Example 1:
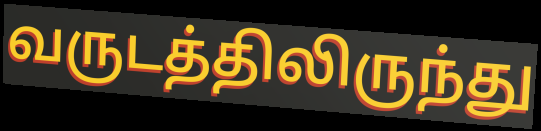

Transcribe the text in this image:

வருடத்திலிருந்து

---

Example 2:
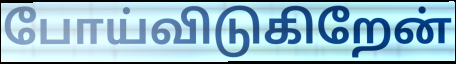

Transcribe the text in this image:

போய்விடுகிறேன்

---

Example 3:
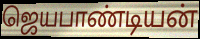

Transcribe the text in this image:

ஜெயபாண்டியன்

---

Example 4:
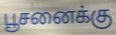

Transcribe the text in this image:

பூசனைக்கு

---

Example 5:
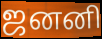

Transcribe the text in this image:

ஜனனி